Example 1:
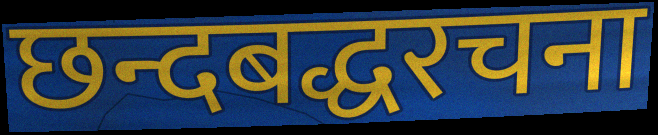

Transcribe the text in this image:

छन्दबद्धरचना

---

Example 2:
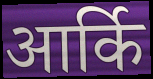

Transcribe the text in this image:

आर्कि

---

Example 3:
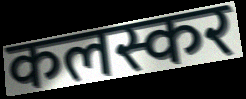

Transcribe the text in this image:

कलस्कर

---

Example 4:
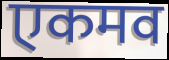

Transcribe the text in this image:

एकमव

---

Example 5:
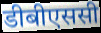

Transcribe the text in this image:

डीबीएससी